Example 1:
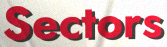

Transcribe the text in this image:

Sectors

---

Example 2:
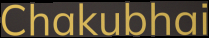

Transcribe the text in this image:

Chakubhai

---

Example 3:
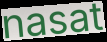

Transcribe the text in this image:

nasat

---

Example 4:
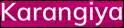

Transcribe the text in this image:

Karangiya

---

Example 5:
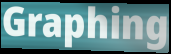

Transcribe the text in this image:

Graphing